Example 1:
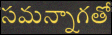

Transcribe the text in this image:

సమన్నాగతో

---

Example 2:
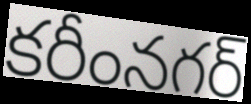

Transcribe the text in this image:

కరీంనగర్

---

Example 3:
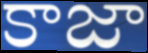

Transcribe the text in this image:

కాజా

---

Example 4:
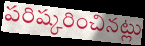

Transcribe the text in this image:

పరిష్కరించినట్లు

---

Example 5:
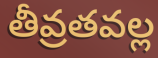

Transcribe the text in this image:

తీవ్రతవల్ల